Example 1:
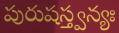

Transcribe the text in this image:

పురుషస్త్వన్యః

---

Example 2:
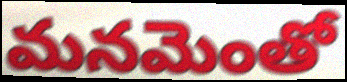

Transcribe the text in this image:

మనమెంతో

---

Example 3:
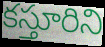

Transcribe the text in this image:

కస్తూరిని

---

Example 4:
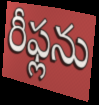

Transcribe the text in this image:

రీఫ్లను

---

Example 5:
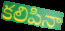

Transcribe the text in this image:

కలిపినా